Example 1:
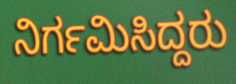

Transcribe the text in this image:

ನಿರ್ಗಮಿಸಿದ್ದರು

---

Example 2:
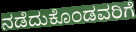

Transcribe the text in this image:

ನಡೆದುಕೊಂಡವರಿಗೆ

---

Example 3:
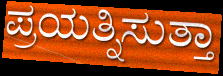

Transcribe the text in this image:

ಪ್ರಯತ್ನಿಸುತ್ತಾ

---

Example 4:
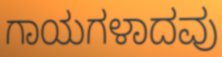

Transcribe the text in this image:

ಗಾಯಗಳಾದವು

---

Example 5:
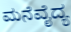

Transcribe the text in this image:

ಮನೆವೈದ್ಯ